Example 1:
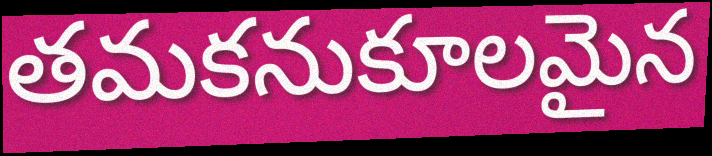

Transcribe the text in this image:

తమకనుకూలమైన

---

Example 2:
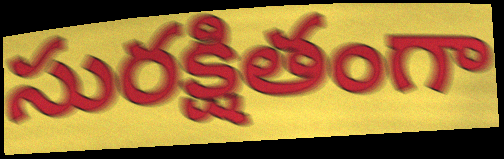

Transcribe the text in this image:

సురక్షితంగా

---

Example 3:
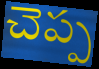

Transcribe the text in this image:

చెప్ప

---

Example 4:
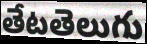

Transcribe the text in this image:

తేటతెలుగు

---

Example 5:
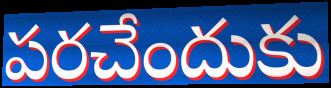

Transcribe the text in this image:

పరచేందుకు